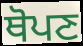
ਥੋਪਣ